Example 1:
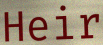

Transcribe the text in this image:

Heir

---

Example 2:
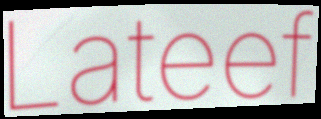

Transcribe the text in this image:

Lateef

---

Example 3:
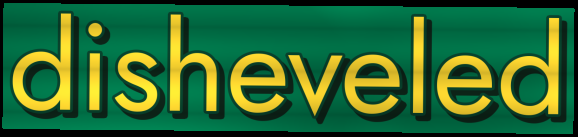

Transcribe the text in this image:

disheveled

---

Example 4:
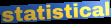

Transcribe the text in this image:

statistical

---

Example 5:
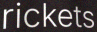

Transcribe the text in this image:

rickets